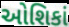
ઓશિકાં